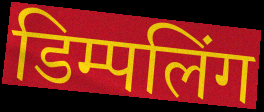
डिम्पलिंग